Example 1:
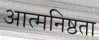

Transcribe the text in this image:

आत्मनिष्ठता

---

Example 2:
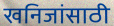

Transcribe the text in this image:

खनिजांसाठी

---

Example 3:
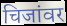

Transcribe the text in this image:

चिजांवर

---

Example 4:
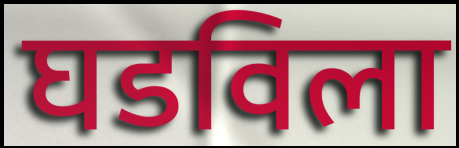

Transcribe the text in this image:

घडविला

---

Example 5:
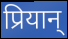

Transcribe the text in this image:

प्रियान्